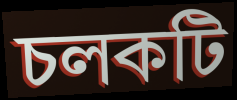
চলকটি